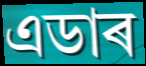
এডাৰ